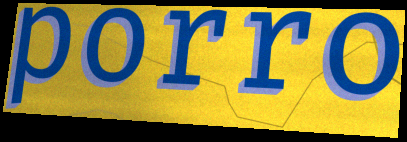
porro